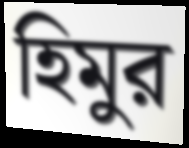
হিমুর